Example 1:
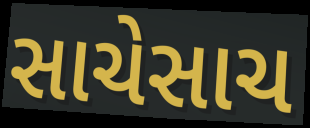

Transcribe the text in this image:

સાચેસાચ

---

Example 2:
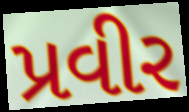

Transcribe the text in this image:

પ્રવીર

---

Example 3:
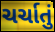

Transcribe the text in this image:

ચર્ચાતું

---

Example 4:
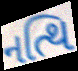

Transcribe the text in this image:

નત્થિ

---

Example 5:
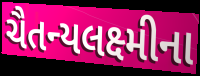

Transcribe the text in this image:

ચૈતન્યલક્ષ્મીના